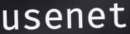
usenet